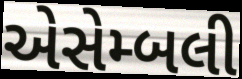
એસેમ્બલી